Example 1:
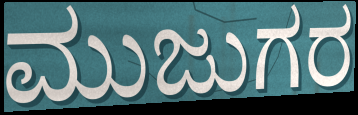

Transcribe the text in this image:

ಮುಜುಗರ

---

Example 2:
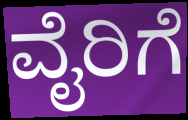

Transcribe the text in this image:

ವೈರಿಗೆ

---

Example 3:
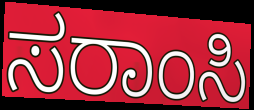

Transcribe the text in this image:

ಸರಾಂಸಿ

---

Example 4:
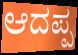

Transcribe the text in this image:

ಆದಪ್ಪ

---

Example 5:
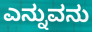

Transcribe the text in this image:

ಎನ್ನುವನು